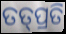
ତତ୍‌ପ୍ରତି